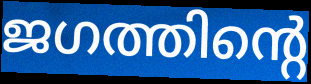
ജഗത്തിന്റെ